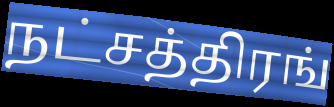
நட்சத்திரங்